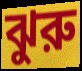
ঝুরু